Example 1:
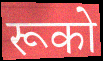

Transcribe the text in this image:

रूको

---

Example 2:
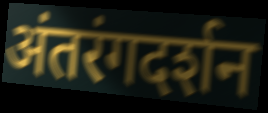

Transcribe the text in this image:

अंतरंगदर्शन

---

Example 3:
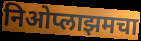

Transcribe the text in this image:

निओप्लाझमचा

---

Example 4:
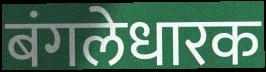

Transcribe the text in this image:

बंगलेधारक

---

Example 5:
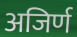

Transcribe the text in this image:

अजिर्ण